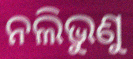
ନଲିଭୁଣୁ